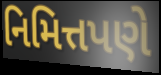
નિમિત્તપણે